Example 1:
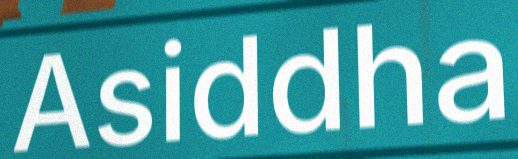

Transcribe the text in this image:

Asiddha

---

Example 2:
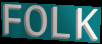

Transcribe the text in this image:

FOLK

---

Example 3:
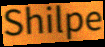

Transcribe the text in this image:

Shilpe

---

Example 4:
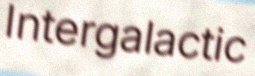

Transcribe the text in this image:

Intergalactic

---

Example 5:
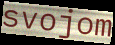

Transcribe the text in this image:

svojom